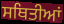
ਸਥਿਤੀਆਂ